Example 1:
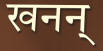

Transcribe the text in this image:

खनन्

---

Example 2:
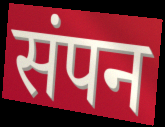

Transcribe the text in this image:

संपन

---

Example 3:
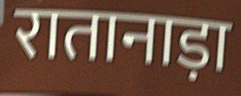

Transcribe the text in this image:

रातानाड़ा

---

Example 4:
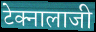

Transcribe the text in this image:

टेक्नालाजी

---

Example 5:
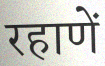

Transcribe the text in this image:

रहाणें